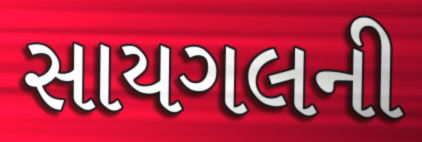
સાયગલની